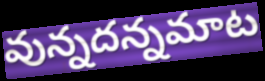
వున్నదన్నమాట